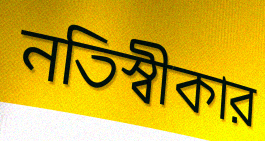
নতিস্বীকার